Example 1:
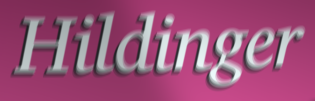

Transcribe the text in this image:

Hildinger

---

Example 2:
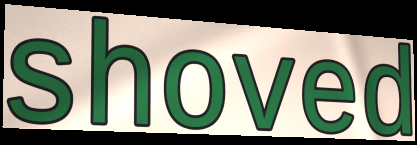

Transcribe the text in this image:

shoved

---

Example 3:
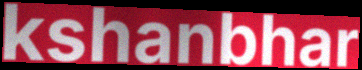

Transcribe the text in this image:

kshanbhar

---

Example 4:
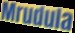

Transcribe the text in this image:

Mrudula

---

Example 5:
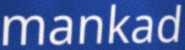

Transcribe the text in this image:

mankad